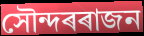
সৌন্দৰৰাজন